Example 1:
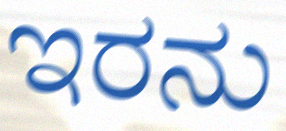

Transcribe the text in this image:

ಇರನು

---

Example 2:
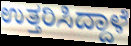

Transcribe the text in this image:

ಉತ್ತರಿಸಿದ್ದಾಳೆ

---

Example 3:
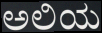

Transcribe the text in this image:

ಅಲಿಯ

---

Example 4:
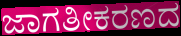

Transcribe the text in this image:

ಜಾಗತೀಕರಣದ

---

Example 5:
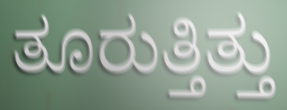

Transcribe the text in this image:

ತೂರುತ್ತಿತ್ತು